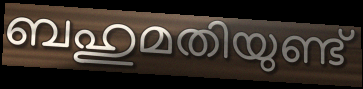
ബഹുമതിയുണ്ട്